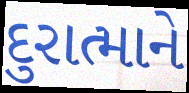
દુરાત્માને